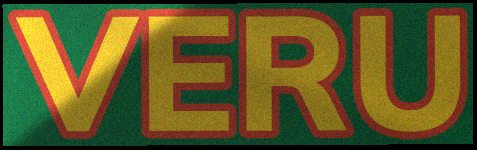
VERU